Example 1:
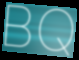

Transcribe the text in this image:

BQ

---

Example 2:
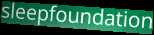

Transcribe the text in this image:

sleepfoundation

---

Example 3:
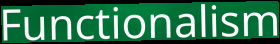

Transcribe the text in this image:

Functionalism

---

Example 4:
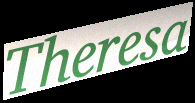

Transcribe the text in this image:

Theresa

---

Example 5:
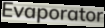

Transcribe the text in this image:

Evaporator